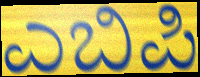
ಎಬಿಪಿ